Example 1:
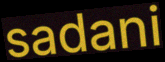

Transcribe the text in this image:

sadani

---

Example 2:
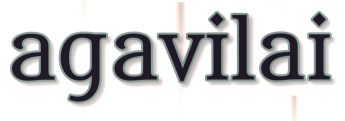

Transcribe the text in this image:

agavilai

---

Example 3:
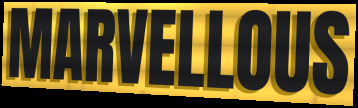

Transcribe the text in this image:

MARVELLOUS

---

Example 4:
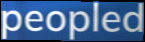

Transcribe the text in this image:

peopled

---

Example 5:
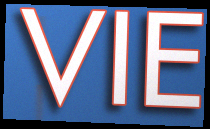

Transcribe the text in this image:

VIE